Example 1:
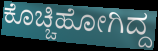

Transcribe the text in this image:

ಕೊಚ್ಚಿಹೋಗಿದ್ದ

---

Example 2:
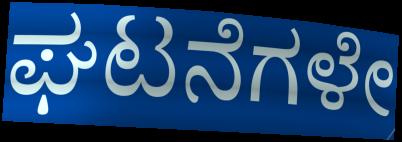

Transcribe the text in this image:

ಘಟನೆಗಳೇ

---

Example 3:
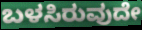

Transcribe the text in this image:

ಬಳಸಿರುವುದೇ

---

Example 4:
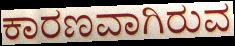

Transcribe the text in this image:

ಕಾರಣವಾಗಿರುವ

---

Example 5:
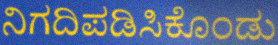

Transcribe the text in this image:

ನಿಗದಿಪಡಿಸಿಕೊಂಡು